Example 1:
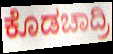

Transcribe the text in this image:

ಕೊಡಚಾದ್ರಿ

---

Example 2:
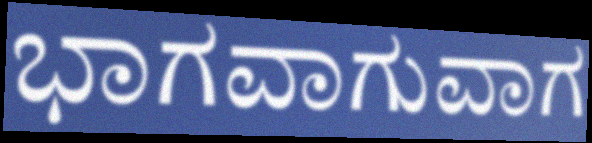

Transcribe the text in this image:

ಭಾಗವಾಗುವಾಗ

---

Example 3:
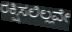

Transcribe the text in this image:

ರಕ್ಷಿಸಲಿಲ್ಲವೇ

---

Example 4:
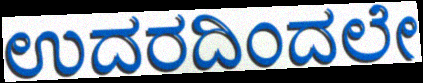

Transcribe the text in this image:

ಉದರದಿಂದಲೇ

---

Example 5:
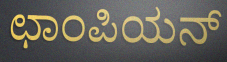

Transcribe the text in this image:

ಛಾಂಪಿಯನ್